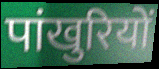
पांखुरियों